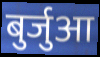
बुर्जुआ